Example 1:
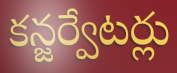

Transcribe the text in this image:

కన్జర్వేటర్లు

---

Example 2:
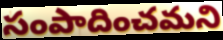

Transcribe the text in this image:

సంపాదించమని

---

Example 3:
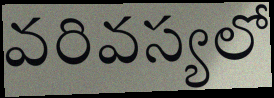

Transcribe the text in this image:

వరివస్యలో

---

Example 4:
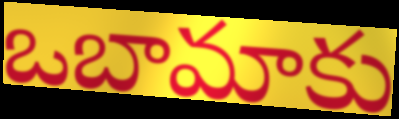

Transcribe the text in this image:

ఒబామాకు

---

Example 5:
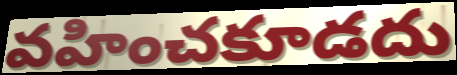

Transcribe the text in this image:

వహించకూడదు